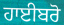
ਹਾਈਬਰੋ